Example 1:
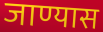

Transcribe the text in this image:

जाण्यास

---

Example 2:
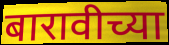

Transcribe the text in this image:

बारावीच्या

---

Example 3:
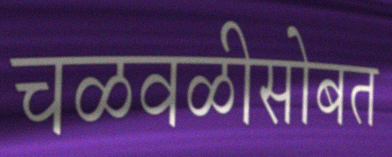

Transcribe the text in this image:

चळवळीसोबत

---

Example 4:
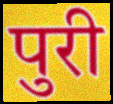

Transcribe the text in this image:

पुरी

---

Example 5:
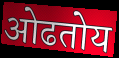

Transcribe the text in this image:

ओढतोय